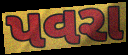
પવરા